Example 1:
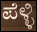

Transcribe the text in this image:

ಪೆಳ್ಳಿ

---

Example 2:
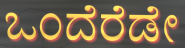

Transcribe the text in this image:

ಒಂದೆರೆಡೇ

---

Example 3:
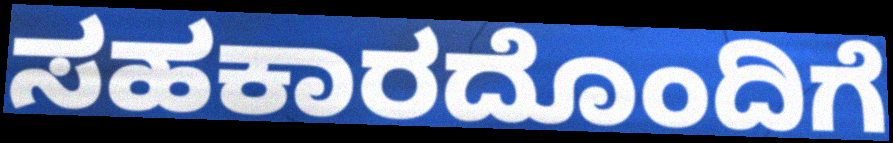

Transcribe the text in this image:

ಸಹಕಾರದೊಂದಿಗೆ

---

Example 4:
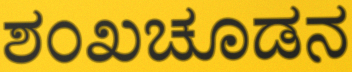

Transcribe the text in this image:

ಶಂಖಚೂಡನ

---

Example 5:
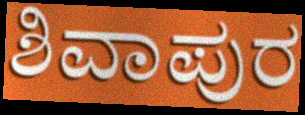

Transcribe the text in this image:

ಶಿವಾಪುರ